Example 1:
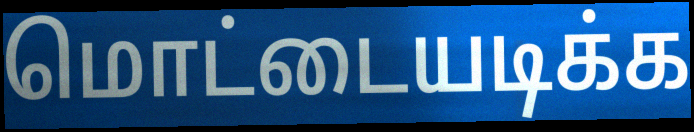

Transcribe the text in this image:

மொட்டையடிக்க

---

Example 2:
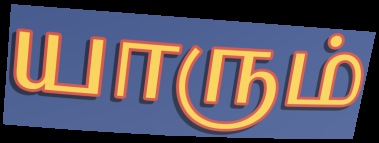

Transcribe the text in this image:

யாரும்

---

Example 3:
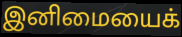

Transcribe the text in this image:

இனிமையைக்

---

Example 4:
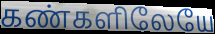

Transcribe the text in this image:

கண்களிலேயே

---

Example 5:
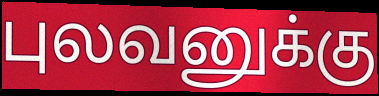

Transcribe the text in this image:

புலவனுக்கு